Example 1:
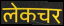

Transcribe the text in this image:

लेकचर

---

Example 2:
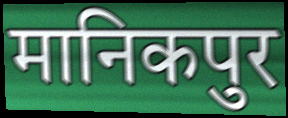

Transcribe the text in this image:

मानिकपुर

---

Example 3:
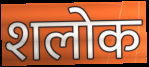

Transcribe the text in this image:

शलोक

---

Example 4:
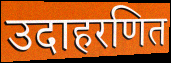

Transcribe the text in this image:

उदाहरणित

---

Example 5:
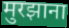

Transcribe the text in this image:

मुरझाना